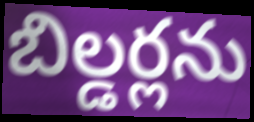
బిల్డర్లను